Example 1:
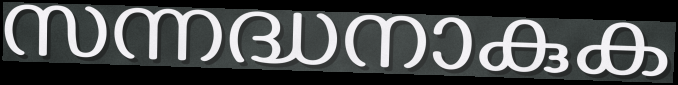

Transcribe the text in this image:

സന്നദ്ധനാകുക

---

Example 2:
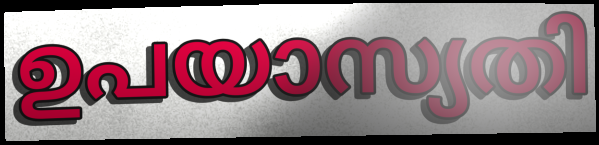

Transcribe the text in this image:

ഉപയാസ്യതി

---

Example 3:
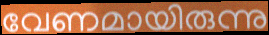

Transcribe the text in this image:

വേണമായിരുന്നു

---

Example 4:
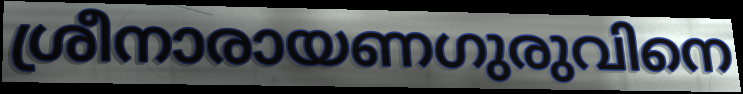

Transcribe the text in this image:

ശ്രീനാരായണഗുരുവിനെ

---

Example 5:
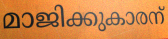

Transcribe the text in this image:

മാജിക്കുകാരന്